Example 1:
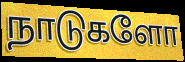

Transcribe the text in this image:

நாடுகளோ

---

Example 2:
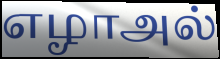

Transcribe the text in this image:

எழாஅல்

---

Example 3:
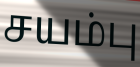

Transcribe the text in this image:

சயம்பு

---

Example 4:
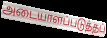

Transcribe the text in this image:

அடையாளப்படுத்தப்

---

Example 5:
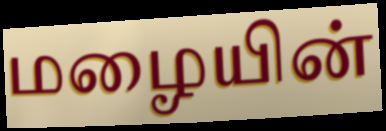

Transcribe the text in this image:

மழையின்